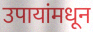
उपायांमधून